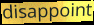
disappoint